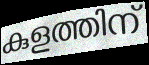
കുളത്തിന്